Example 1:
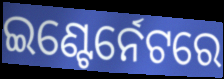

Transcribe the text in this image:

ଇଣ୍ଟେର୍ନେଟରେ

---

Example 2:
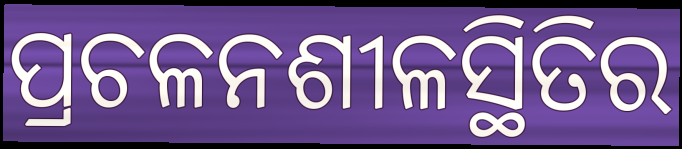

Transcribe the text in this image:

ପ୍ରଚଳନଶୀଳସ୍ଥିତିର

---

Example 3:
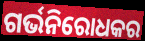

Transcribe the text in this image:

ଗର୍ଭନିରୋଧକର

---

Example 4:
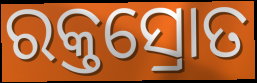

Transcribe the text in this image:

ରକ୍ତସ୍ରୋତ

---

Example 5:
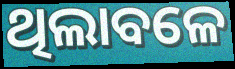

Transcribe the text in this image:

ଥିଲାବଳେ